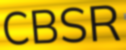
CBSR